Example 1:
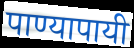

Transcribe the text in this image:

पाण्यापायी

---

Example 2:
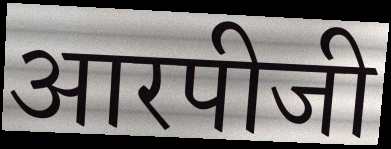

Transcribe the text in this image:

आरपीजी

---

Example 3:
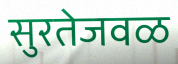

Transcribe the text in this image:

सुरतेजवळ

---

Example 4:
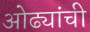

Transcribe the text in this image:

ओढ्यांची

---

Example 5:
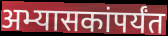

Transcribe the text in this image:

अभ्यासकांपर्यंत